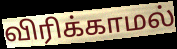
விரிக்காமல்